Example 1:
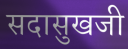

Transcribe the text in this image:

सदासुखजी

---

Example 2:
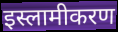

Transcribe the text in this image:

इस्लामीकरण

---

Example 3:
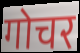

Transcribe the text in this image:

गोचर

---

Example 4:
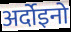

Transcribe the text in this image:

अर्दोइनो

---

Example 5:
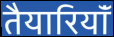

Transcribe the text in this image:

तैयारियॉं